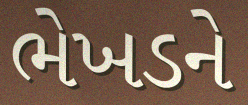
ભેખડને